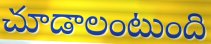
చూడాలంటుంది